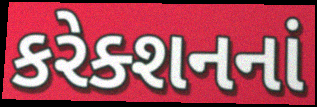
કરેક્શનનાં